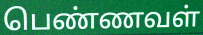
பெண்ணவள்